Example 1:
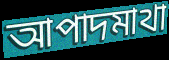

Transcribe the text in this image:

আপাদমাথা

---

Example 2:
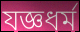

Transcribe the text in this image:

যজ্ঞধর্ম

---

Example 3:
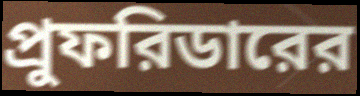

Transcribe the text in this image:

প্রুফরিডারের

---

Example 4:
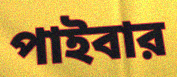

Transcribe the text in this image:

পাইবার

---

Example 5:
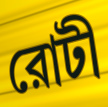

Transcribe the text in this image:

রোটী